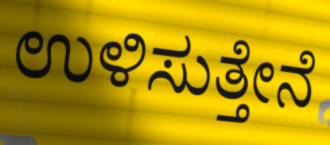
ಉಳಿಸುತ್ತೇನೆ